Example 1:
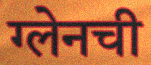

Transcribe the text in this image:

ग्लेनची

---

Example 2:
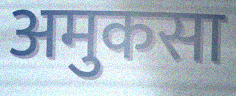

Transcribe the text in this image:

अमुकसा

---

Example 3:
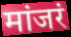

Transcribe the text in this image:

मांजरं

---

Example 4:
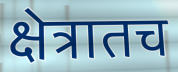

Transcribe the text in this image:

क्षेत्रातच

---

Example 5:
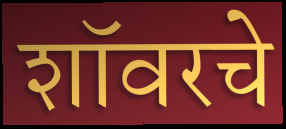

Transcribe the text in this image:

शॉवरचे